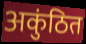
अकुंठित